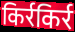
किर्रकिर्र